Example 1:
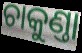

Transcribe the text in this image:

ଚାକୁଣ୍ତା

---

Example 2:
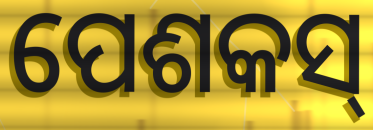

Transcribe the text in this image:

ପେଶକସ୍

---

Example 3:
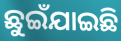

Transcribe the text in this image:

ଛୁଇଁଯାଇଛି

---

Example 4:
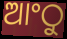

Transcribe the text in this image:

ଆଂଠୁ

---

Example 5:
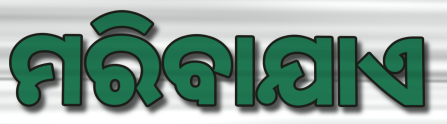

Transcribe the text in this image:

ମରିବାଯାଏ